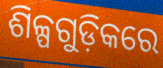
ଶିଳ୍ପଗୁଡ଼ିକରେ